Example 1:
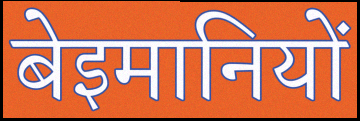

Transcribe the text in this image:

बेइमानियों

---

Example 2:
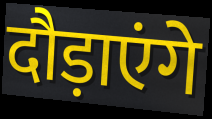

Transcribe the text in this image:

दौड़ाएंगे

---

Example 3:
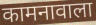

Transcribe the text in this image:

कामनावाला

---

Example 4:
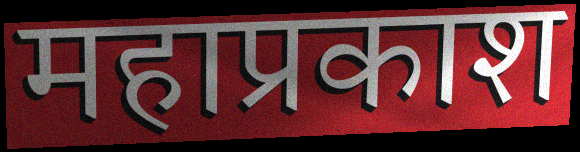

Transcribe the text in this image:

महाप्रकाश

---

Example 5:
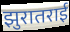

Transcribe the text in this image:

झुरातराई